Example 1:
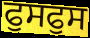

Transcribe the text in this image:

ਫੁਸਫੁਸ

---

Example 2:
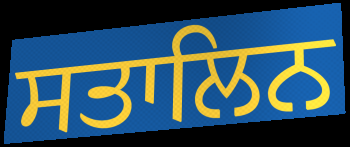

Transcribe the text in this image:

ਸਤਾਲਿਨ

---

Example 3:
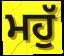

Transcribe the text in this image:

ਮਹੁੱ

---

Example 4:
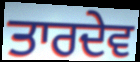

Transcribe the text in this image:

ਤਾਰਦੇਵ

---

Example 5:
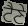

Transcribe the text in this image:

ਟੈਣੇ